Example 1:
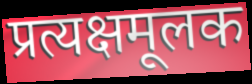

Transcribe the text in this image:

प्रत्यक्षमूलक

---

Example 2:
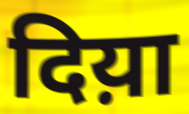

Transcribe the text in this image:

दिय़ा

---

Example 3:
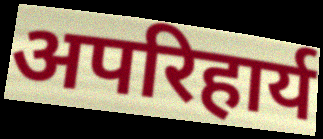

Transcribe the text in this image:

अपरिहार्य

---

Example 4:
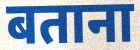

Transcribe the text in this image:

बताना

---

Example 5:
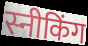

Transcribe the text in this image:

स्नीकिंग